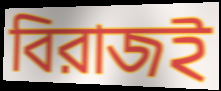
বিরাজই